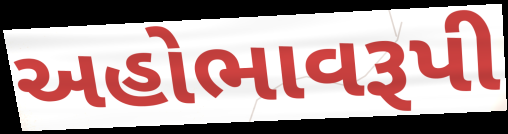
અહોભાવરૂપી